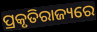
ପ୍ରକୃତିରାଜ୍ୟରେ